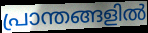
പ്രാന്തങ്ങളിൽ